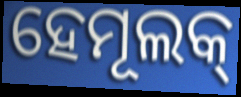
ହେମୂଲକ୍